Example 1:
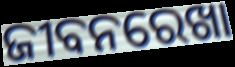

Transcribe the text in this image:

ଜୀବନରେଖା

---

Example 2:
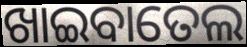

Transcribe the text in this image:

ଖାଇବାତେଲ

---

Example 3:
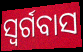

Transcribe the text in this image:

ସ୍ଵର୍ଗବାସ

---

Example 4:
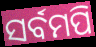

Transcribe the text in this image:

ସର୍ବମପି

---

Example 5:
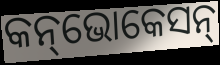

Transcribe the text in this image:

କନ୍‌ଭୋକେସନ୍